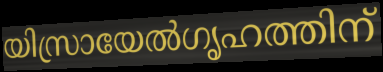
യിസ്രായേൽഗൃഹത്തിന്